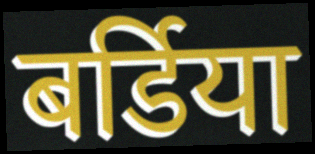
बर्डिया